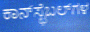
ಕಾನ್‌ಸ್ಟೆಬಲ್‌ಗಳ